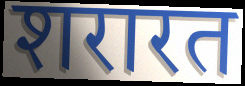
शरारत